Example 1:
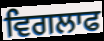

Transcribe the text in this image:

ਵਿਗਲਾਫ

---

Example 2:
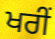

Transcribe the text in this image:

ਖਰੀਂ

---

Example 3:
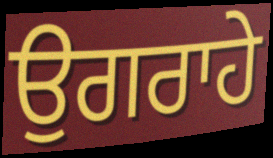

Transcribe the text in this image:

ਉਗਰਾਹੇ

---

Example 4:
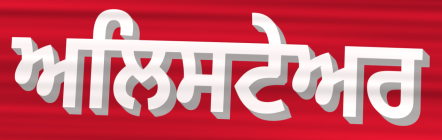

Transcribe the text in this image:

ਅਲਿਸਟੇਅਰ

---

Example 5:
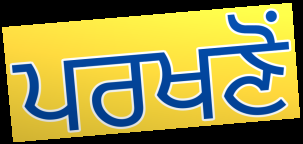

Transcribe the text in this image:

ਪਰਖਣੋਂ